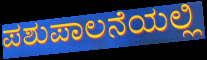
ಪಶುಪಾಲನೆಯಲ್ಲಿ